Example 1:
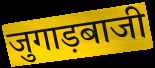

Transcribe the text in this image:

जुगाड़बाजी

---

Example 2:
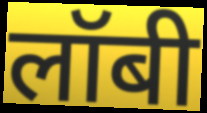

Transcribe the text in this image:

लॉबी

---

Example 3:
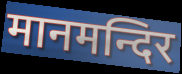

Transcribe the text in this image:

मानमन्दिर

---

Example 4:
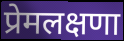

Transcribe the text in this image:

प्रेमलक्षणा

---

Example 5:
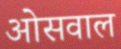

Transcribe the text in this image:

ओसवाल